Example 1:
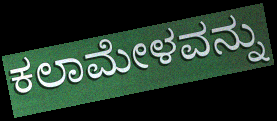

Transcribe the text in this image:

ಕಲಾಮೇಳವನ್ನು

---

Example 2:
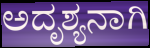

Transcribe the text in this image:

ಅದೃಶ್ಯನಾಗಿ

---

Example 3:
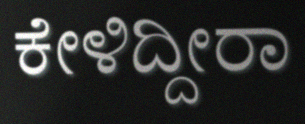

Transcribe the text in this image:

ಕೇಳಿದ್ದೀರಾ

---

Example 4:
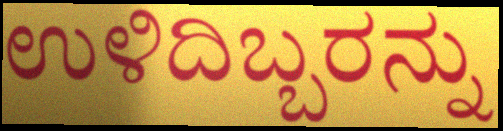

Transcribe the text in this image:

ಉಳಿದಿಬ್ಬರನ್ನು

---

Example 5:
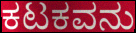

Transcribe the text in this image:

ಕಟಕವನು